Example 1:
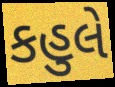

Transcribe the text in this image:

કહુલે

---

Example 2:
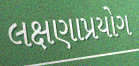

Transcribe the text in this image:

લક્ષણાપ્રયોગ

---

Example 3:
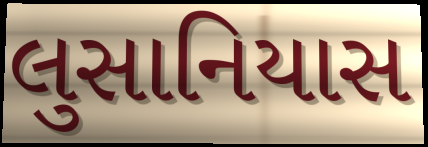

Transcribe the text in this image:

લુસાનિયાસ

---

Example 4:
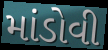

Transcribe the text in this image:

માંડોવી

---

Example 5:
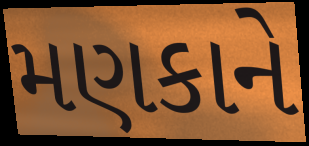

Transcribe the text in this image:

મણકાને